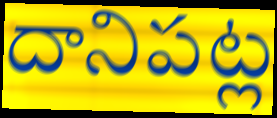
దానిపట్ల